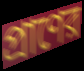
প্রাণের